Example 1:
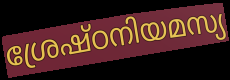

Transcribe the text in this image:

ശ്രേഷ്ഠനിയമസ്യ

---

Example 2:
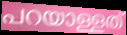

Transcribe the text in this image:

പറയാള്ളത്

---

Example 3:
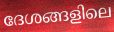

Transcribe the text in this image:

ദേശങ്ങളിലെ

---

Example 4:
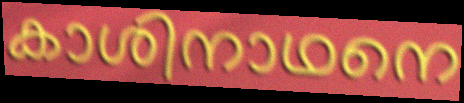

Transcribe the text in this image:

കാശിനാഥനെ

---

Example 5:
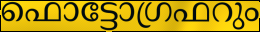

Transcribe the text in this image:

ഫൊട്ടോഗ്രഫറും